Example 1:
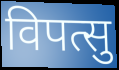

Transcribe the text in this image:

विपत्सु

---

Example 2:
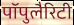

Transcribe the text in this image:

पॉपुलैरिटी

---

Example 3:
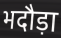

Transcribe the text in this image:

भदौड़ा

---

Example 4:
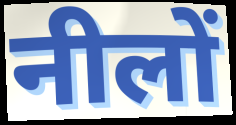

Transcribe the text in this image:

नीलों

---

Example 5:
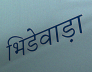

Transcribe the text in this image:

भिडेवाड़ा